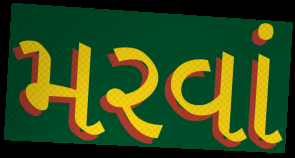
મરવાં